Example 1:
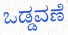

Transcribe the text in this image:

ಒಡ್ಡವಣೆ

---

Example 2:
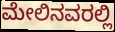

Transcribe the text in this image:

ಮೇಲಿನವರಲ್ಲಿ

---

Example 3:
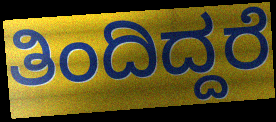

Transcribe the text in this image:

ತಿಂದಿದ್ದರೆ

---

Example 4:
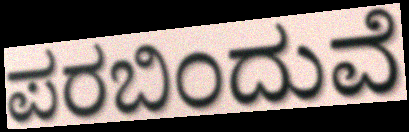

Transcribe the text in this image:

ಪರಬಿಂದುವೆ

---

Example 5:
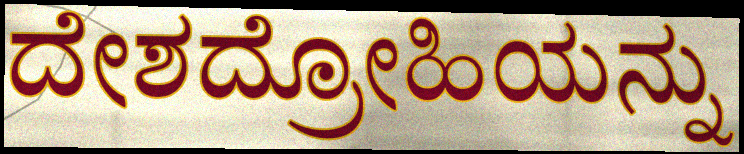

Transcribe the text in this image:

ದೇಶದ್ರೋಹಿಯನ್ನು